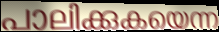
പാലിക്കുകയെന്ന